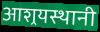
आश्रयस्थानी